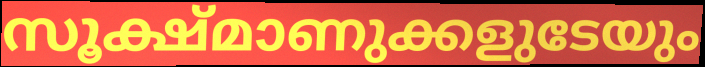
സൂക്ഷ്മാണുക്കളുടേയും